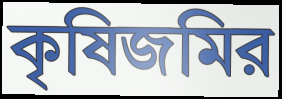
কৃষিজমির